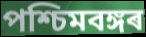
পশ্চিমবঙ্গৰ